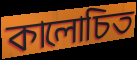
কালোচিত